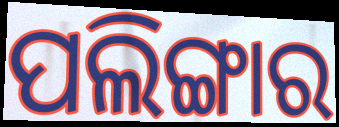
ପଲିଙ୍ଗାର